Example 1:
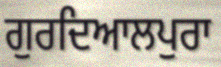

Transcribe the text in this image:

ਗੁਰਦਿਆਲਪੁਰਾ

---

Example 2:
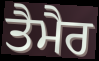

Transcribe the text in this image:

ਤੈਮੈਰ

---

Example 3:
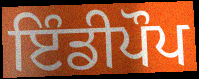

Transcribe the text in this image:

ਇੰਡੀਪੌਪ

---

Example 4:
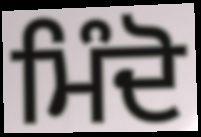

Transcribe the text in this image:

ਮਿੰਦੋ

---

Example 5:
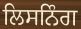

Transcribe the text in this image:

ਲਿਸਨਿੰਗ